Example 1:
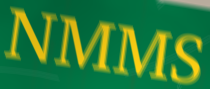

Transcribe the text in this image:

NMMS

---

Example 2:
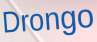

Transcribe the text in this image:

Drongo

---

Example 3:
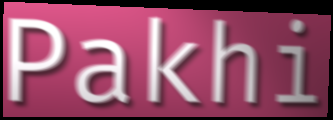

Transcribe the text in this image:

Pakhi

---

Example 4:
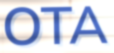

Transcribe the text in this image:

OTA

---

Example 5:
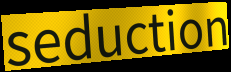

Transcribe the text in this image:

seduction